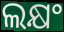
ଲକ୍ଷଂ